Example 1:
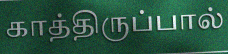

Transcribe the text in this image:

காத்திருப்பால்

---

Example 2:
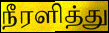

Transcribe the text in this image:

நீரளித்து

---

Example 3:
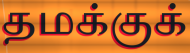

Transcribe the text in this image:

தமக்குக்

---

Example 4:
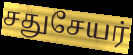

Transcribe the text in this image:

சதுசேயர்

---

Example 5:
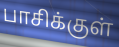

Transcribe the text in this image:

பாசிக்குள்